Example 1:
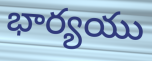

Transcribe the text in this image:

భార్యయు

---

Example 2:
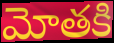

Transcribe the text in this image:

మోతకి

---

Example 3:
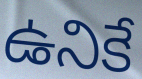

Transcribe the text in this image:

ఉనికే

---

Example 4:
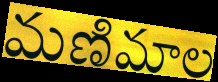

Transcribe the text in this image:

మణిమాల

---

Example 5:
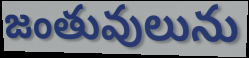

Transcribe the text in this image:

జంతువులును